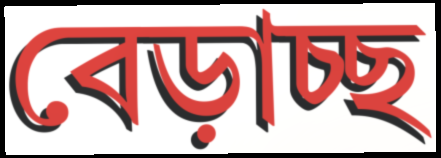
বেড়াচ্ছ